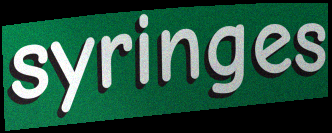
syringes